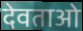
देवताओ